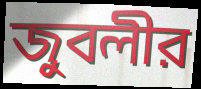
জুবলীর